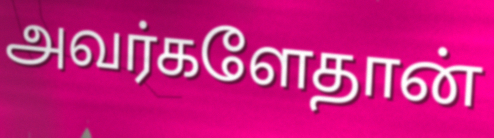
அவர்களேதான்